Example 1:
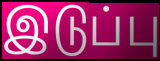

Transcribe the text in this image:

இடுப்பு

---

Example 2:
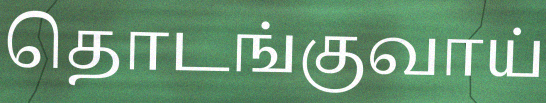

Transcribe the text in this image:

தொடங்குவாய்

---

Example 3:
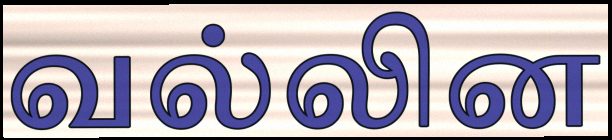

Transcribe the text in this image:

வல்லின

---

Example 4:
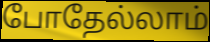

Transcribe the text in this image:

போதேல்லாம்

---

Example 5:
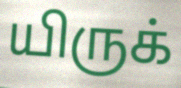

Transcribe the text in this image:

யிருக்